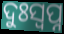
ଦୁଃସ୍ଵପ୍ନ